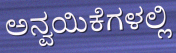
ಅನ್ವಯಿಕೆಗಳಲ್ಲಿ